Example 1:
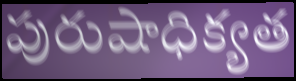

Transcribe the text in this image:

పురుషాధిక్యత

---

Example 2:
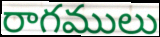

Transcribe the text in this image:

రాగములు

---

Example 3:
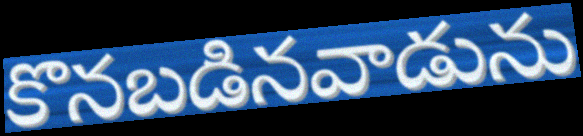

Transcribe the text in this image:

కొనబడినవాడును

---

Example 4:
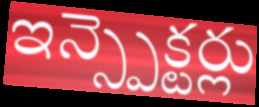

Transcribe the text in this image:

ఇన్స్పెక్టర్లు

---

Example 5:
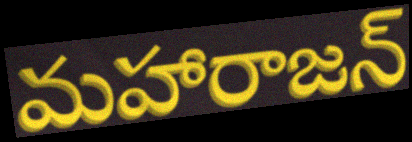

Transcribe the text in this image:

మహారాజన్